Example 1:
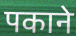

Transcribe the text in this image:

पकाने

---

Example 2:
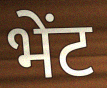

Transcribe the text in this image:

भेंट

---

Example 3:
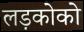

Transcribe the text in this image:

लड़कोको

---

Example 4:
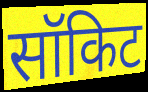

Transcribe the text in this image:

सॉकिट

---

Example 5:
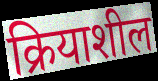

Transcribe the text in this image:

क्रियाशील